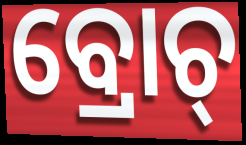
ବ୍ରୋଚ୍